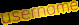
username